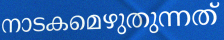
നാടകമെഴുതുന്നത്